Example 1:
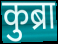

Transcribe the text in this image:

कुब्रा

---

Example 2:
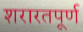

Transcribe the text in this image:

शरारतपूर्ण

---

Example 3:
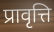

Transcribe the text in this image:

प्रावृत्ति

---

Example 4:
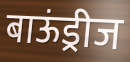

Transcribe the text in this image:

बाऊंड्रीज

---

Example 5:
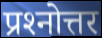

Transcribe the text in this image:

प्रश्‍नोत्तर